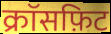
क्रॉसफ़िट